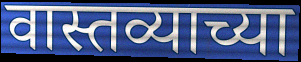
वास्तव्याच्या